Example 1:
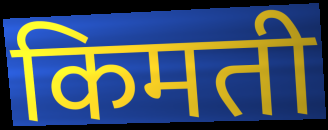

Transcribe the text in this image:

किमती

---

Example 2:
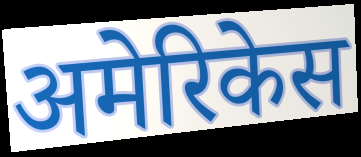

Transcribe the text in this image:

अमेरिकेस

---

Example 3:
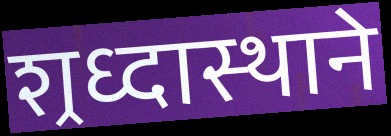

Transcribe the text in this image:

श्रध्दास्थाने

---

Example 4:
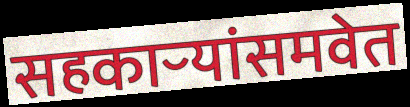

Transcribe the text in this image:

सहकाऱ्यांसमवेत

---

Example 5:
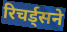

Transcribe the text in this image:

रिचर्ड्सने